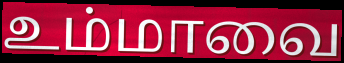
உம்மாவை